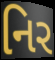
નિર